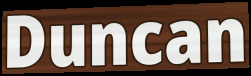
Duncan